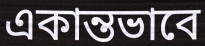
একান্তভাবে